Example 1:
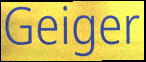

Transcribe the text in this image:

Geiger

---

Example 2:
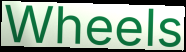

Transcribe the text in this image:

Wheels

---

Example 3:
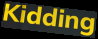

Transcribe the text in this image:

Kidding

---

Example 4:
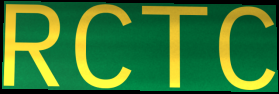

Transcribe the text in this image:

RCTC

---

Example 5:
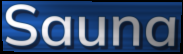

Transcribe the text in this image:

Sauna